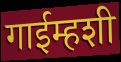
गाईम्हशी